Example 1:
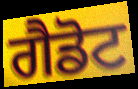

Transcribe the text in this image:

ਗੈਡੋਟ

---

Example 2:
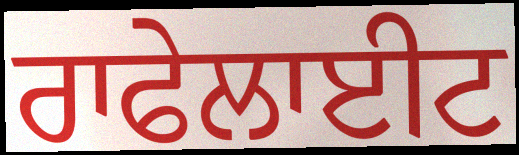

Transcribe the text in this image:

ਰਾਫੇਲਾਈਟ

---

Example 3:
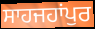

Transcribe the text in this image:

ਸਾਹਜਹਾਂਪੁਰ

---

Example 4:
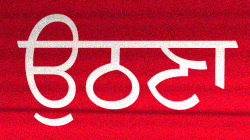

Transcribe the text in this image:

ਉਠਣਾ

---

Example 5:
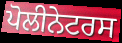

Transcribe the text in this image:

ਪੋਲੀਨੇਟਰਸ